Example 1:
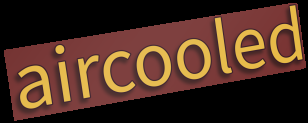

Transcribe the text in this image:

aircooled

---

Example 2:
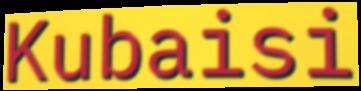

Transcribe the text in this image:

Kubaisi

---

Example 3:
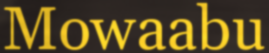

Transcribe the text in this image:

Mowaabu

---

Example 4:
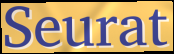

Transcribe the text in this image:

Seurat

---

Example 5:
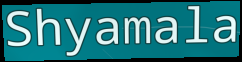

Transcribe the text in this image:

Shyamala